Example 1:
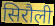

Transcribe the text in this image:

सिरौली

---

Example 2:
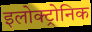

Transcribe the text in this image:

इलोक्ट्रोनिक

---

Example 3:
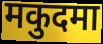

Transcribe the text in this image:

मकुदमा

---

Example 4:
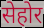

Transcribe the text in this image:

सेहोर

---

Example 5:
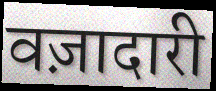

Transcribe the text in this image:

वज़ादारी